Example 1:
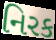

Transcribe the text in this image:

નિરક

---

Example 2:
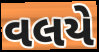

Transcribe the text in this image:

વલયે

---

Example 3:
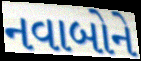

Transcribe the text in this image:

નવાબોને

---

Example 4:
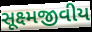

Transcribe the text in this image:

સૂક્ષ્મજીવીય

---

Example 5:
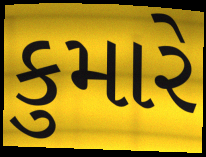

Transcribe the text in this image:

કુમારે